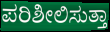
ಪರಿಶೀಲಿಸುತ್ತಾ